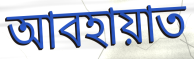
আবহায়াত